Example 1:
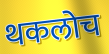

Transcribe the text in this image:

थकलोच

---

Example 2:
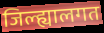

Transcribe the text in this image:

जिल्ह्यालगत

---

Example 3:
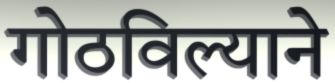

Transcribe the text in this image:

गोठविल्याने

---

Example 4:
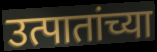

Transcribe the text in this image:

उत्पातांच्या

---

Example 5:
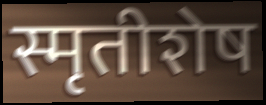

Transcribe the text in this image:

स्मृतीशेष